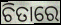
ଚିତାରେ